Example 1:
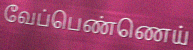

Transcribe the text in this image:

வேப்பெண்ணெய்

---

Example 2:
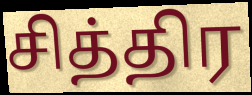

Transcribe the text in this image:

சித்திர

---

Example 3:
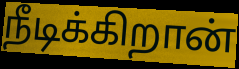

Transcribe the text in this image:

நீடிக்கிறான்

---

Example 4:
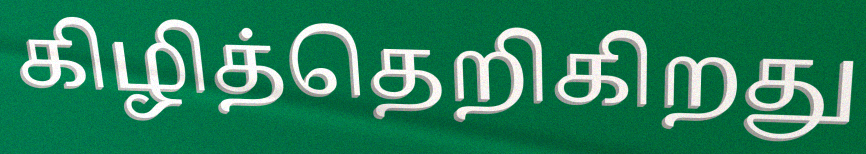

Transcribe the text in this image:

கிழித்தெறிகிறது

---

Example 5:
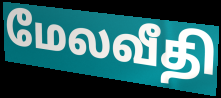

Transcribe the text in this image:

மேலவீதி